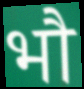
भौ